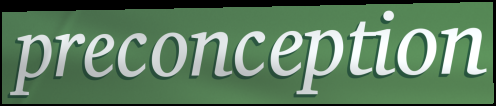
preconception